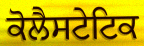
ਕੋਲੈਸਟੇਟਿਕ